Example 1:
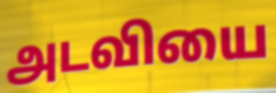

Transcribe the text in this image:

அடவியை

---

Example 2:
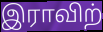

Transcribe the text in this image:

இராவிற்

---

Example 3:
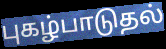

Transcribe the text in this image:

புகழ்பாடுதல்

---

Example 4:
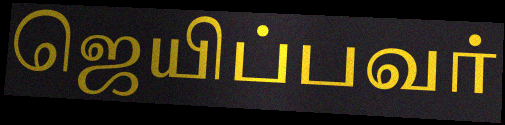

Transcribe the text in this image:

ஜெயிப்பவர்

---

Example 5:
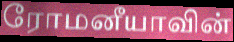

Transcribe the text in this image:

ரோமனீயாவின்